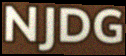
NJDG